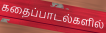
கதைப்பாடல்களில்